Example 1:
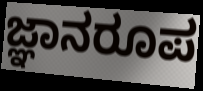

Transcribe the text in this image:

ಜ್ಞಾನರೂಪ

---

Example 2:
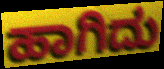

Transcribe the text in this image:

ಹಾಗಿದು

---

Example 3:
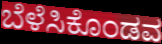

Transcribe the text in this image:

ಬೆಳೆಸಿಕೊಂಡವ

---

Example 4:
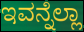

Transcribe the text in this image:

ಇವನ್ನೆಲ್ಲಾ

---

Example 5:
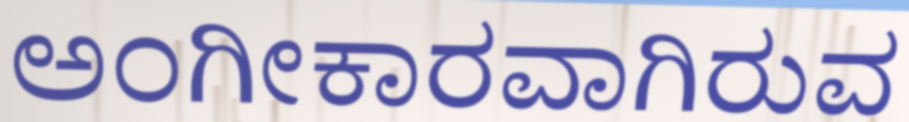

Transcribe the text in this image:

ಅಂಗೀಕಾರವಾಗಿರುವ